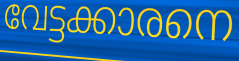
വേട്ടക്കാരനെ